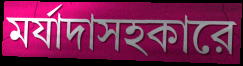
মর্যাদাসহকারে